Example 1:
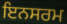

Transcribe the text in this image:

ਇਨਸਰਮ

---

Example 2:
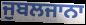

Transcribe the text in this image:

ਜੁਬਲਜਾਨਾ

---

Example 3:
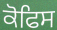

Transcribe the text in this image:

ਕੋਫਿਸ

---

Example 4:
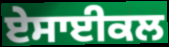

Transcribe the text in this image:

ਏਸਾਈਕਲ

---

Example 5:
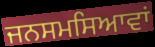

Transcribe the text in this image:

ਜਨਸਮਸਿਆਵਾਂ